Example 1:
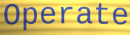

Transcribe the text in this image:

Operate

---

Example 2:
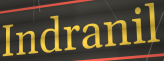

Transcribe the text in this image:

Indranil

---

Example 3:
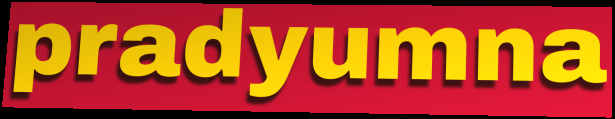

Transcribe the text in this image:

pradyumna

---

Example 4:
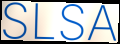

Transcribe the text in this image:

SLSA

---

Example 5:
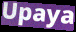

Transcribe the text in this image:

Upaya